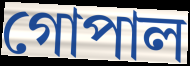
গোপাল